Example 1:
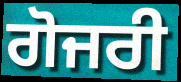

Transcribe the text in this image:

ਗੋਜਰੀ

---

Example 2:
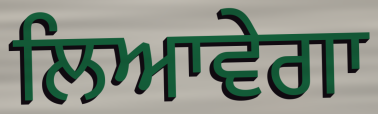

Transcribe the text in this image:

ਲਿਆਵੇਗਾ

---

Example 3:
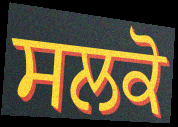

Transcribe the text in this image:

ਸਲਕੋ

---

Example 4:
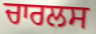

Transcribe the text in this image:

ਚਾਰਲਸ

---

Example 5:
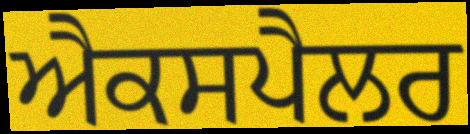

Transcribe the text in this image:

ਐਕਸਪੈਲਰ